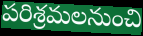
పరిశ్రమలనుంచి